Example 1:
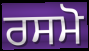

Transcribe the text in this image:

ਰਸਮੋ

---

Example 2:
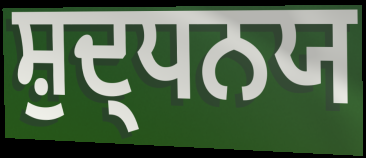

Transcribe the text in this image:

ਸ਼ੁਦ੍ਧਨਯ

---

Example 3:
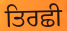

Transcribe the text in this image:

ਤਿਰਛੀ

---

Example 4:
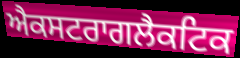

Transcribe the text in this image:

ਐਕਸਟਰਾਗਲੈਕਟਿਕ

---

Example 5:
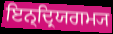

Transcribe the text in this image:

ਇਨ੍ਦ੍ਰਿਯਗਮ੍ਯ